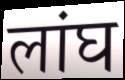
लांघ